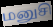
மனுசி